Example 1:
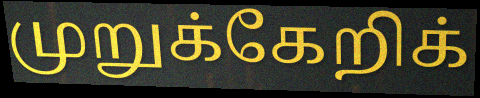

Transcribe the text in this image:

முறுக்கேறிக்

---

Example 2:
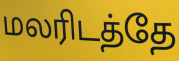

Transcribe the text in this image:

மலரிடத்தே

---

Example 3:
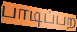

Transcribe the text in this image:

பாடிப்பற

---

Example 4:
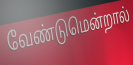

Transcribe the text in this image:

வேண்டுமென்றால்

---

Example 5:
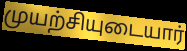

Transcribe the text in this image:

முயற்சியுடையார்